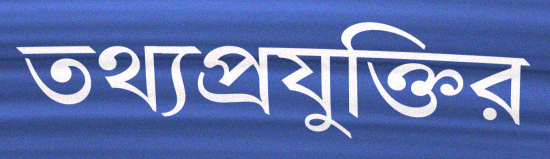
তথ্যপ্রযুক্তির